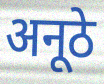
अनूठे